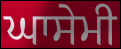
ਘਾਸੇਮੀ